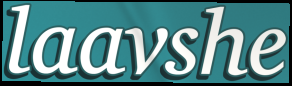
laavshe